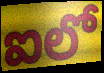
ఐలో